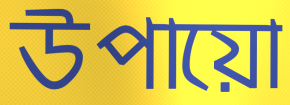
উপায়ো